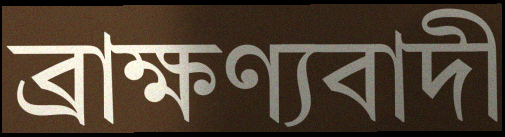
ব্রাক্ষণ্যবাদী